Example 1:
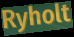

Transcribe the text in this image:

Ryholt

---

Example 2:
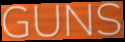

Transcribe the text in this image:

GUNS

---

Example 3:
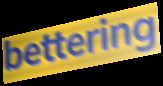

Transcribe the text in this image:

bettering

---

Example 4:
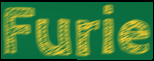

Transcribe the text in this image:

Furie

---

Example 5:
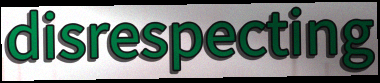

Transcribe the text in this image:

disrespecting